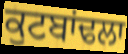
ਕੁਟਬਾਂਢਲਾ